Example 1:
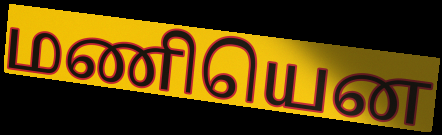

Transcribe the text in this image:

மணியென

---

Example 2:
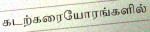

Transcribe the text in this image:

கடற்கரையோரங்களில்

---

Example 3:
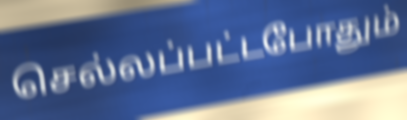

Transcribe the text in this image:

செல்லப்பட்டபோதும்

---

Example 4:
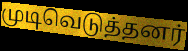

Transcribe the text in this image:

முடிவெடுத்தனர்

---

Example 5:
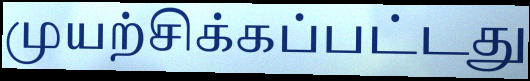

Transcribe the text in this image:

முயற்சிக்கப்பட்டது